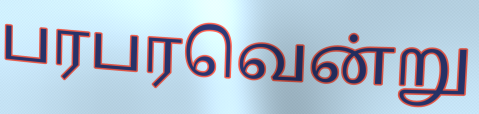
பரபரவென்று